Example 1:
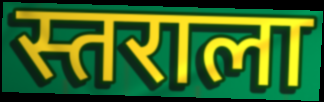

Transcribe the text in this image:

स्तराला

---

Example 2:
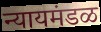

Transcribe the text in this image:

न्यायमंडळ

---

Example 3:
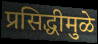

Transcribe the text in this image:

प्रसिद्धीमुळे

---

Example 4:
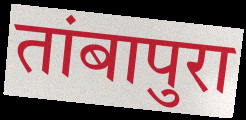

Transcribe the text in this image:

तांबापुरा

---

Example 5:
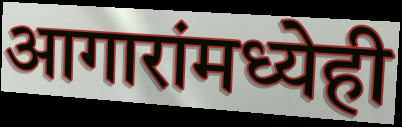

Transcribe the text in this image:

आगारांमध्येही